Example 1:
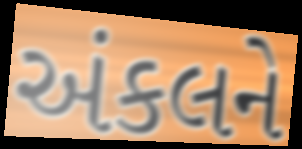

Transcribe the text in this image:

અંકલને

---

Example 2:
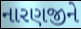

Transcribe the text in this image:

નારણજીને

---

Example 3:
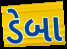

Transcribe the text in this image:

ડેબા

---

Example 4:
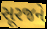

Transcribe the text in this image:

સૂરજને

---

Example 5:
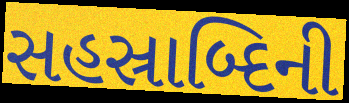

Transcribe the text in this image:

સહસ્રાબ્દિની